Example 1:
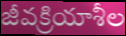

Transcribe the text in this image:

జీవక్రియాశీల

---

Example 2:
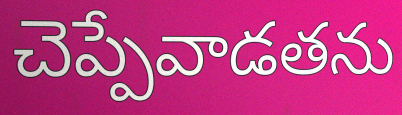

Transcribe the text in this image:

చెప్పేవాడతను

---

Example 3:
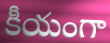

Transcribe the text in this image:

కీయంగా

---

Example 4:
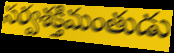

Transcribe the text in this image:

సర్వశక్తిమంతుడు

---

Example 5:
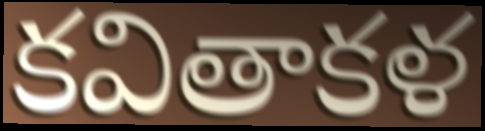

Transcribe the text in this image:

కవితాకళ